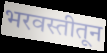
भरवस्तीतून